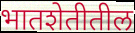
भातशेतीतील